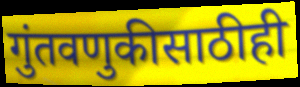
गुंतवणुकीसाठीही